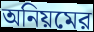
অনিয়মের